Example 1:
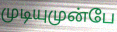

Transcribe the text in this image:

முடியுமுன்பே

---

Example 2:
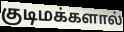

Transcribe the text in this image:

குடிமக்களால்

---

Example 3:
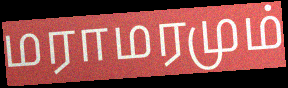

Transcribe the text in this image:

மராமரமும்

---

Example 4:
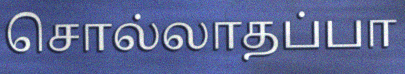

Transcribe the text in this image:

சொல்லாதப்பா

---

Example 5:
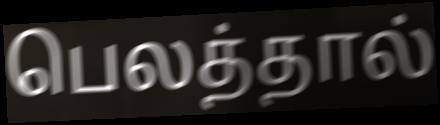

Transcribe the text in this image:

பெலத்தால்